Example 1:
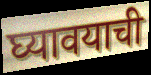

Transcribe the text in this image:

घ्यावयाची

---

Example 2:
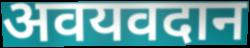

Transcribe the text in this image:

अवयवदान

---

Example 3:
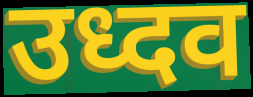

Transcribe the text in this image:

उध्दव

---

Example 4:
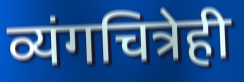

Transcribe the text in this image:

व्यंगचित्रेही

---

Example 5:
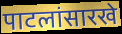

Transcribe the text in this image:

पाटलांसारखे